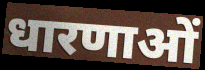
धारणाओं